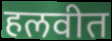
हलवीत